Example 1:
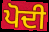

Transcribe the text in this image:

ਪੋਦੀ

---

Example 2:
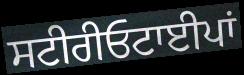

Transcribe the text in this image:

ਸਟੀਰੀਓਟਾਈਪਾਂ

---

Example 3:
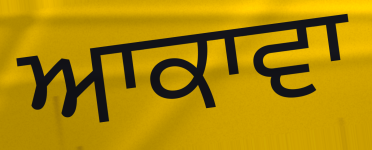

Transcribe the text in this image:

ਆਕਾਵਾ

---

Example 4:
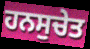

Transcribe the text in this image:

ਹਨਸੁਚੇਤ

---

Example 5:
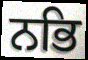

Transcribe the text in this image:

ਨਭਿ